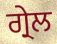
ਗ੍ਰੇਲ